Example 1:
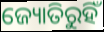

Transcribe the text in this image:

ଜ୍ୟୋତିରୁହିଁ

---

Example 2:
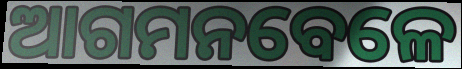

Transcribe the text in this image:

ଆଗମନବେଳେ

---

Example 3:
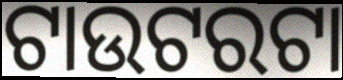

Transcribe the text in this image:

ଟାଉଟରଟା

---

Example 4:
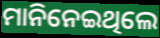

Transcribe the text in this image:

ମାନିନେଇଥିଲେ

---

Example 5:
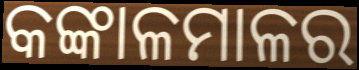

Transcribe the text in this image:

କଙ୍କାଳମାଳର